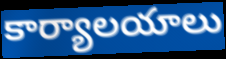
కార్యాలయాలు